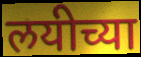
लयीच्या